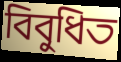
বিবুধিত